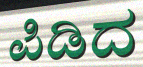
ಪಿಡಿದ